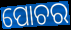
ପୋଚର